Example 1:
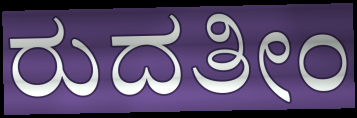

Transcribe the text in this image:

ರುದತೀಂ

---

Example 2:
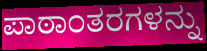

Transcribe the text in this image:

ಪಾಠಾಂತರಗಳನ್ನು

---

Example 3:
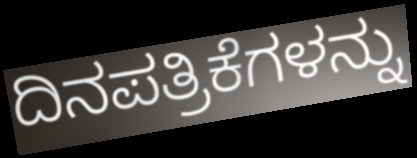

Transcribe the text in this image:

ದಿನಪತ್ರಿಕೆಗಳನ್ನು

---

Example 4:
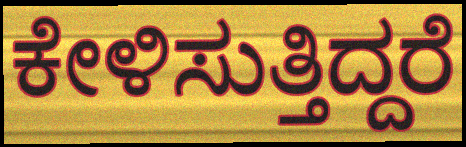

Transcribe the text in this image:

ಕೇಳಿಸುತ್ತಿದ್ದರೆ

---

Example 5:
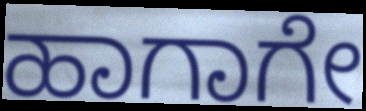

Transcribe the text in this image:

ಹಾಗಾಗೇ